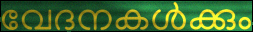
വേദനകൾക്കും